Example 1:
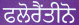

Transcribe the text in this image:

ਫਲੋਰੈਂਤੀਨੋ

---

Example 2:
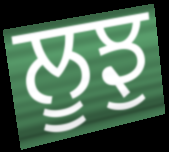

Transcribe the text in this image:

ਲੂਝੁ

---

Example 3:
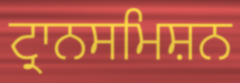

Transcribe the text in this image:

ਟ੍ਰਾਨਸਮਿਸ਼ਨ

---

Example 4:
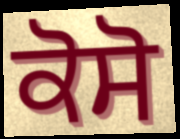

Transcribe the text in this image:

ਕੋਸੋ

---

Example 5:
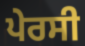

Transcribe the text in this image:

ਪੇਰਸੀ